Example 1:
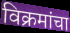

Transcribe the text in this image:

विक्रमांचा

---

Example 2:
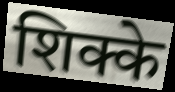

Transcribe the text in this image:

शिक्के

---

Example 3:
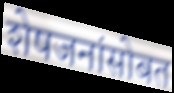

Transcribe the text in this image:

शेषजनांसोबत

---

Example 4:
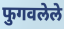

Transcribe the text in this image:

फुगवलेले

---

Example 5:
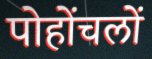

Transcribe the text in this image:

पोहोंचलों